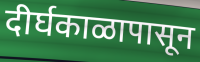
दीर्घकाळापासून